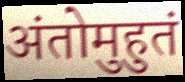
अंतोमुहुतं